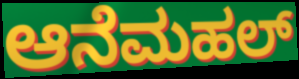
ಆನೆಮಹಲ್